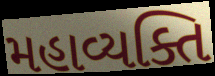
મહાવ્યક્તિ